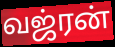
வஜ்ரன்